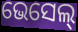
ଭେସେଲ୍